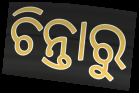
ଚିନ୍ତାରୁ